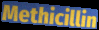
Methicillin